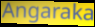
Angaraka